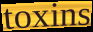
toxins